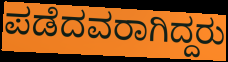
ಪಡೆದವರಾಗಿದ್ದರು